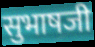
सुभाषजी